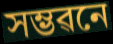
সম্ভৱনে